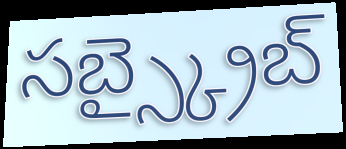
సబ్స్క్రైబ్